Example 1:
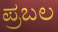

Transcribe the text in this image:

ಪ್ರಬಲ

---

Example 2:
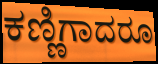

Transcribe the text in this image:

ಕಣ್ಣಿಗಾದರೂ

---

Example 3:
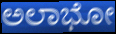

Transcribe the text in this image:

ಅಲಾಭೋ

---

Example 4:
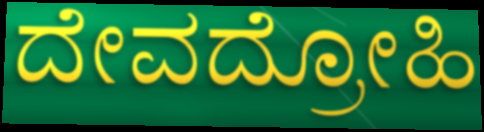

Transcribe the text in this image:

ದೇವದ್ರೋಹಿ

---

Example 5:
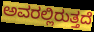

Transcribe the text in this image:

ಅವರಲ್ಲಿರುತ್ತದೆ